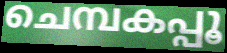
ചെമ്പകപ്പൂ